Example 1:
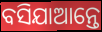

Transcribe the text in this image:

ବସିଯାଆନ୍ତେ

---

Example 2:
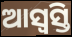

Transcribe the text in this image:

ଆସ୍ୱସ୍ତି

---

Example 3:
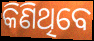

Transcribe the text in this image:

କିଣିଥିବେ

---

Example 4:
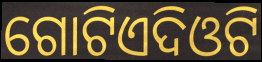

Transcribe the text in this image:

ଗୋଟିଏଦିଓଟି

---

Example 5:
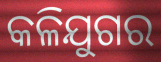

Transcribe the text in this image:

କଳିଯୁଗର